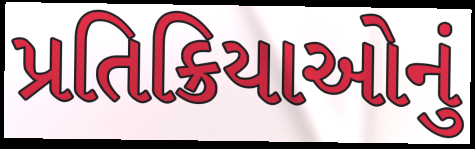
પ્રતિક્રિયાઓનું